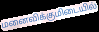
மனைவிக்குமிடையில்